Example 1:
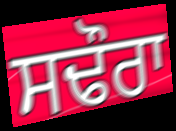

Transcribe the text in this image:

ਸਢੌਰਾ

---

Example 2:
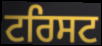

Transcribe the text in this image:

ਟਰਿਸਟ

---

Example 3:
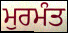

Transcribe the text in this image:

ਮੁਰਮੰਤ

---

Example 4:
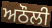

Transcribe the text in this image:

ਅਠੌਲੀ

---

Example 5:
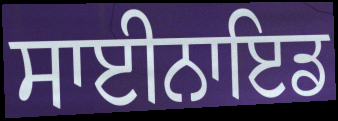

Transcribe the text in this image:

ਸਾਈਨਾਇਡ